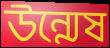
উন্মেষ